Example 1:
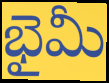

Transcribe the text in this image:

భైమీ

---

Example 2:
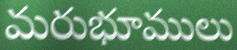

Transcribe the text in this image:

మరుభూములు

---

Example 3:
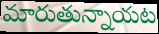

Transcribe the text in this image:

మారుతున్నాయట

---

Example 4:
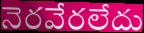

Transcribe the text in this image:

నెరవేరలేదు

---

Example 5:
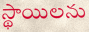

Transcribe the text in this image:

స్థాయిలను